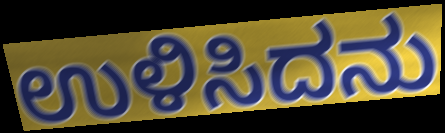
ಉಳಿಸಿದನು